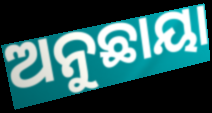
ଅନୁଛାୟା